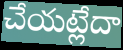
చేయట్లేదా